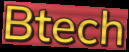
Btech